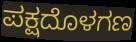
ಪಕ್ಷದೊಳಗಣ